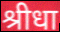
श्रीधा